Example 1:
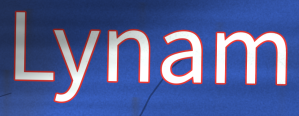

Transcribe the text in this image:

Lynam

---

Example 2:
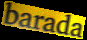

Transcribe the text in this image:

barada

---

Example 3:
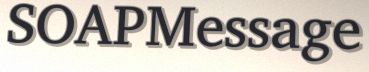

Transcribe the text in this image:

SOAPMessage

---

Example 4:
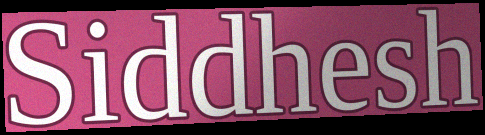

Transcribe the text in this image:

Siddhesh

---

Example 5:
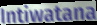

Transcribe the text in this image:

Intiwatana